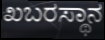
ಖಬರಸ್ಥಾನ